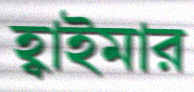
হ্বাইমার